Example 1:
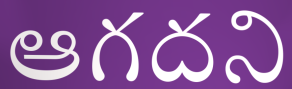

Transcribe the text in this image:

ఆగదని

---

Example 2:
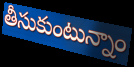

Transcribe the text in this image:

తీసుకుంటున్నాం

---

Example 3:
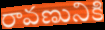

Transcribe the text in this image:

రావణునికి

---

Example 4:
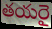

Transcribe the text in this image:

తయరై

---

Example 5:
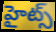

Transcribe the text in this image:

హైట్స్